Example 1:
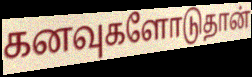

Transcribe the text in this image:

கனவுகளோடுதான்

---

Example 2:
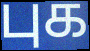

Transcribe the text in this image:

புக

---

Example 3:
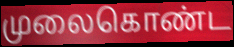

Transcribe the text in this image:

முலைகொண்ட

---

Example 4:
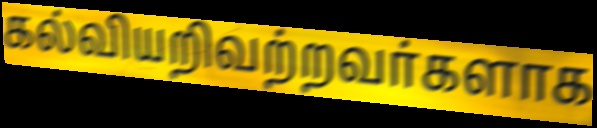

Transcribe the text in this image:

கல்வியறிவற்றவர்களாக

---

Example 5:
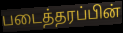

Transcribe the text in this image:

படைத்தரப்பின்